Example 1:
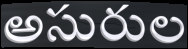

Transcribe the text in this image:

అసురుల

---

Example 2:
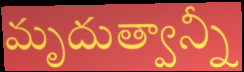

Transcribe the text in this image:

మృదుత్వాన్నీ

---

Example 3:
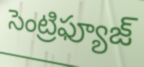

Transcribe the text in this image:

సెంట్రిఫ్యూజ్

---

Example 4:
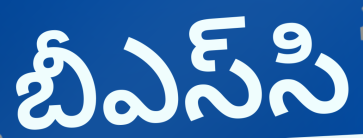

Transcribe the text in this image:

బీఎస్‌సి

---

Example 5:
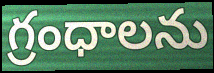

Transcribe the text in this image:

గ్రంధాలను